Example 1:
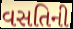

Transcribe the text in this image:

વસતિની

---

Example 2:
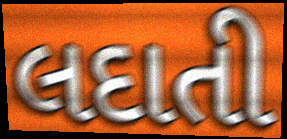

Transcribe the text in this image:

લદાતી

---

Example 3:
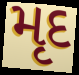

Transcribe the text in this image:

મૃદ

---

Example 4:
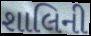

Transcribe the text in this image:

શાલિની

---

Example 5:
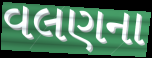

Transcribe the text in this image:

વલણના